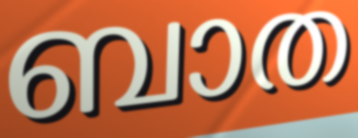
ബാത